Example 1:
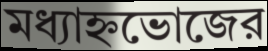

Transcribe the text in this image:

মধ্যাহ্নভোজের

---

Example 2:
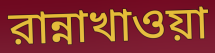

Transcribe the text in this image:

রান্নাখাওয়া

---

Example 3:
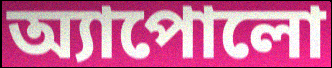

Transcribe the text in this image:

অ্যাপোলো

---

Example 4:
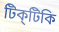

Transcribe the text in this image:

টিক্‌টিকি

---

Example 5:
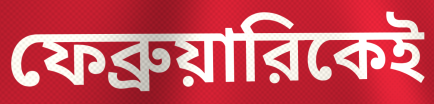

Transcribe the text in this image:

ফেব্রুয়ারিকেই